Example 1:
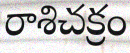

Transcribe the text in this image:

రాశిచక్రం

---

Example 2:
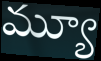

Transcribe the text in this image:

మ్యూ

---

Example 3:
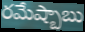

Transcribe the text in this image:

రమేష్బాబు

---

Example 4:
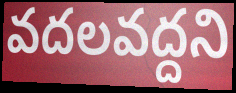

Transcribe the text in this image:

వదలవద్దని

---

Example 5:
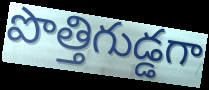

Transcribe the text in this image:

పొత్తిగుడ్డగా